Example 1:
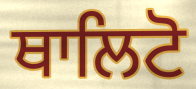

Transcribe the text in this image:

ਥਾਲਿਟੋ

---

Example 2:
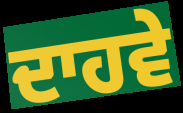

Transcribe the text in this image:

ਦਾਹਵੇ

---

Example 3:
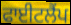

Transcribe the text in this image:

ਫਾਈਟਲੈਂਪ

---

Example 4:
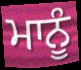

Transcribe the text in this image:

ਮਾਨੂੰ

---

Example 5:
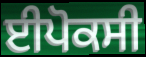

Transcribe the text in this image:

ਈਪੋਕਸੀ